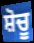
ਸ਼ੋਚੂ